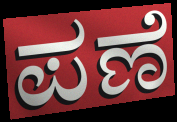
ಪಣೆ